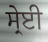
ਸ੍ਰੇਈ